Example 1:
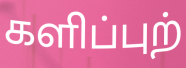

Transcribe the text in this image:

களிப்புற்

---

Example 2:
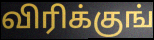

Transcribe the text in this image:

விரிக்குங்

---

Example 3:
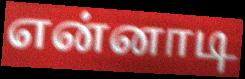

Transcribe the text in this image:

என்னாடி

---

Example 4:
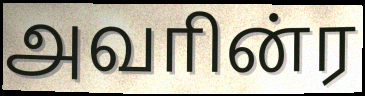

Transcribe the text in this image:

அவரின்ர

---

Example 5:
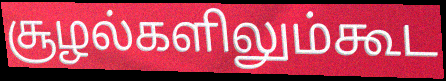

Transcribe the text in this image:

சூழல்களிலும்கூட